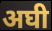
अघी